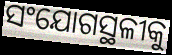
ସଂଯୋଗସ୍ଥଳୀକୁ